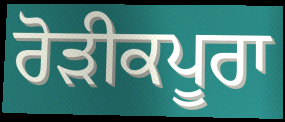
ਰੋੜੀਕਪੂਰਾ